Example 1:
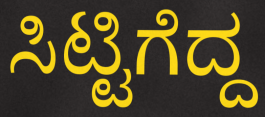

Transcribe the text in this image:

ಸಿಟ್ಟಿಗೆದ್ದ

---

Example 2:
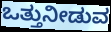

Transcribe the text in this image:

ಒತ್ತುನೀಡುವ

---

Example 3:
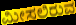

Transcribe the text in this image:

ಮೀಸಲಿರುವ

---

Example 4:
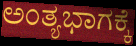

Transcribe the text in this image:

ಅಂತ್ಯಭಾಗಕ್ಕೆ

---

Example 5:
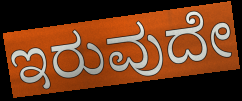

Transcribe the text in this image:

ಇರುವುದೇ